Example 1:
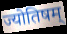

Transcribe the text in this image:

ज्योतिषम्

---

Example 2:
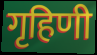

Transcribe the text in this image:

गृहिणी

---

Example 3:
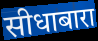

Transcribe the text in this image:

सीधाबारा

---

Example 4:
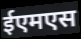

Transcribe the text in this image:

ईएमएस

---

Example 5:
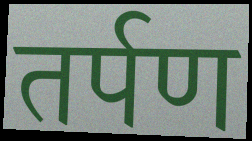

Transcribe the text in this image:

तर्पण